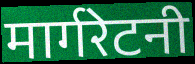
मार्गरेटनी